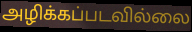
அழிக்கப்படவில்லை